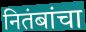
नितंबांचा